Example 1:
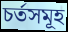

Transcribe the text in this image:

চৰ্তসমূহ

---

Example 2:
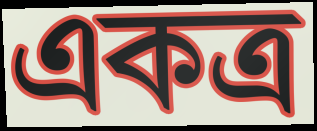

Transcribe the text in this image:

একত্ৰ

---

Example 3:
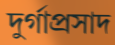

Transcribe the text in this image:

দুৰ্গাপ্ৰসাদ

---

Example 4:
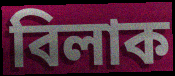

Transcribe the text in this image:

বিলাক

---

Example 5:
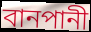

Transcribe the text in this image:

বানপানী